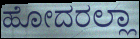
ಹೋದರಲ್ಲಾ